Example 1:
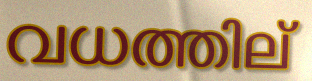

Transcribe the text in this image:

വധത്തില്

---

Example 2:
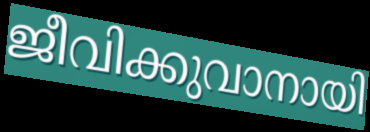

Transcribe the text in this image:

ജീവിക്കുവാനായി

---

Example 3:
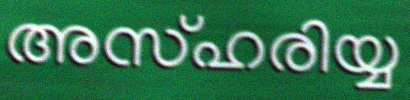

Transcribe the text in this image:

അസ്ഹരിയ്യ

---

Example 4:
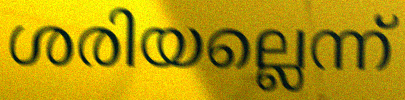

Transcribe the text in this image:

ശരിയല്ലെന്ന്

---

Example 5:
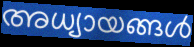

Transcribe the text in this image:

അധ്യായങ്ങൾ